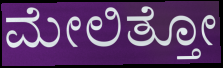
ಮೇಲಿತ್ತೋ